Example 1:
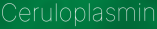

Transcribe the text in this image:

Ceruloplasmin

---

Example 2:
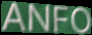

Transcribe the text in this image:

ANFO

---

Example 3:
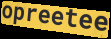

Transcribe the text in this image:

opreetee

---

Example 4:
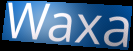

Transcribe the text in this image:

Waxa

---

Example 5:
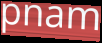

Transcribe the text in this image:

pnam